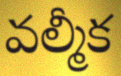
వల్మీక